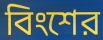
বিংশের